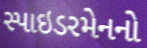
સ્પાઇડરમેનનો